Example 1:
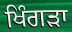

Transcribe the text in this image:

ਖਿੰਗੜਾ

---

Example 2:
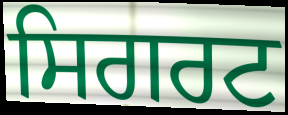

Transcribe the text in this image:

ਸਿਗਰਟ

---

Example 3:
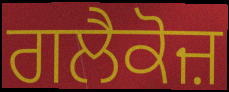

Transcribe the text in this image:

ਗਲੈਕੋਜ਼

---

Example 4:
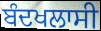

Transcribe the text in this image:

ਬੰਦਖਲਾਸੀ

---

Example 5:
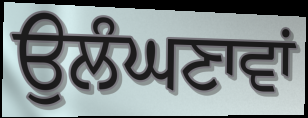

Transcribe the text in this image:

ਉਲੰਘਣਾਵਾਂ